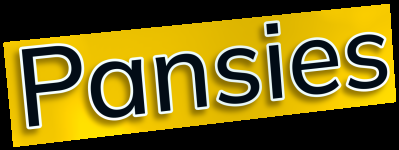
Pansies